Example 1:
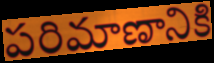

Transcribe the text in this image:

పరిమాణానికి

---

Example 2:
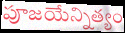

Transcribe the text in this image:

పూజయేన్నిత్యం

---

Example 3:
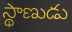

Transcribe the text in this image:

స్థాణుడు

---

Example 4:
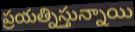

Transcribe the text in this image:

ప్రయత్నిస్తున్నాయి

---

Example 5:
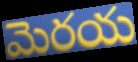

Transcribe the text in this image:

మెరయ